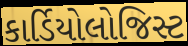
કાર્ડિયોલોજિસ્ટ